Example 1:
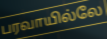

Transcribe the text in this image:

பரவாயில்லே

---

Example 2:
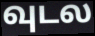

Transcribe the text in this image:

வுடல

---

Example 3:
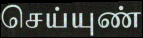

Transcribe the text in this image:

செய்யுண்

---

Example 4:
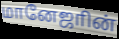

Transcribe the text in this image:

மானேஜரின்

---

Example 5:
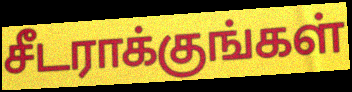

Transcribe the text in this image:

சீடராக்குங்கள்